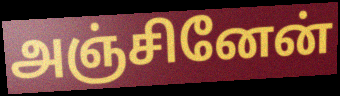
அஞ்சினேன்